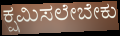
ಕ್ಷಮಿಸಲೇಬೇಕು